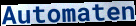
Automaten